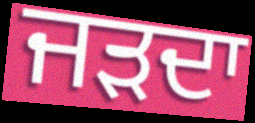
ਜੜਦਾ